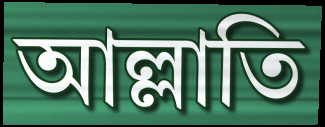
আল্লাতি